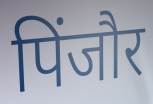
पिंजौर